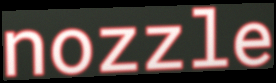
nozzle